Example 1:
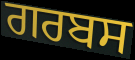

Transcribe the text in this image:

ਗਰਬਸ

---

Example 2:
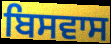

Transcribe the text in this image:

ਬਿਸਵਾਸ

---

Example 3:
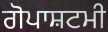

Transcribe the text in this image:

ਗੋਪਾਸ਼ਟਮੀ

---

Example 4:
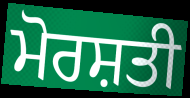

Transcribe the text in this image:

ਮੋਰਸ਼ਤੀ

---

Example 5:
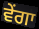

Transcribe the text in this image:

ਵੇਂਗਾ